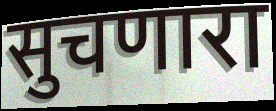
सुचणारा